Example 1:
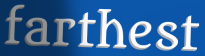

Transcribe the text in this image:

farthest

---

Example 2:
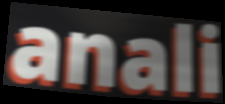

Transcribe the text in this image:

anali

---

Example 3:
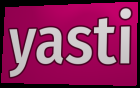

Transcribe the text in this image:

yasti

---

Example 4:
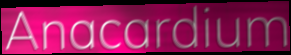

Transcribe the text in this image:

Anacardium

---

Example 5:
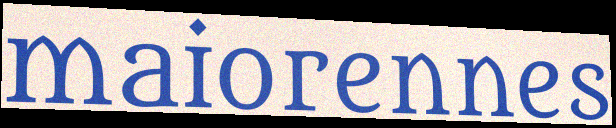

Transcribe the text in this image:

maiorennes